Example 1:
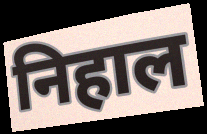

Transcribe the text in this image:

निहाल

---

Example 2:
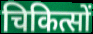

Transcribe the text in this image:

चिकित्सों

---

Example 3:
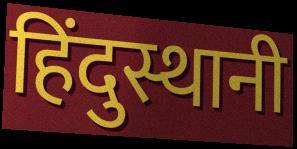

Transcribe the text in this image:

हिंदुस्थानी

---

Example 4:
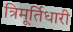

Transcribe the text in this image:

त्रिमूर्तिधारी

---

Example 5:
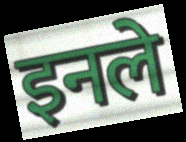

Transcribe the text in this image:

इनले